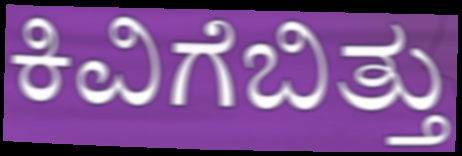
ಕಿವಿಗೆಬಿತ್ತು